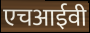
एचआईवी